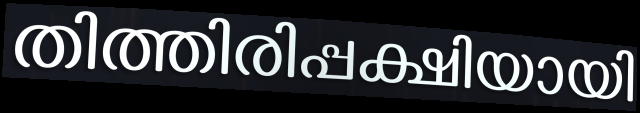
തിത്തിരിപ്പക്ഷിയായി